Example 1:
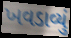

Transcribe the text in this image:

ખવડાવ્યું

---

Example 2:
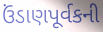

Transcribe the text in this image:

ઉંડાણપૂર્વકની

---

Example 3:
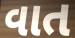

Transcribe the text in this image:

વાત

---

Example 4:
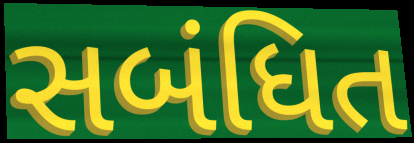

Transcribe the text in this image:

સબંધિત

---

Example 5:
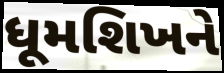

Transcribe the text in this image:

ધૂમશિખને